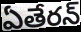
ఏతేరన్